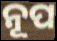
ନୂପ